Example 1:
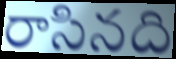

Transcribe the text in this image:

రాసినది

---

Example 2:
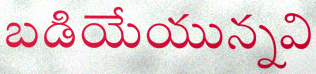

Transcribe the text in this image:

బడియేయున్నవి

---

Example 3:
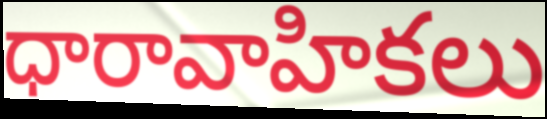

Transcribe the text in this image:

ధారావాహికలు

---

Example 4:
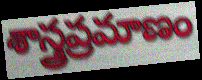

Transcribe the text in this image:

శాస్త్రప్రమాణం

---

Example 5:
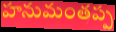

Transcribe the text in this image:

హనుమంతప్ప